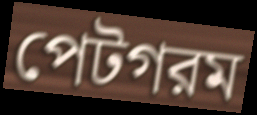
পেটগরম